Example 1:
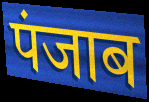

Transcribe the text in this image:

पंजाब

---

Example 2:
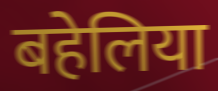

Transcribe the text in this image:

बहेलिया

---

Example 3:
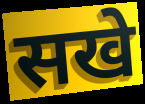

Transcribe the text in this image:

सखे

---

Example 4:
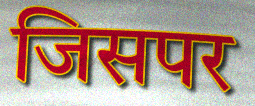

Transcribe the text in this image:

जिसपर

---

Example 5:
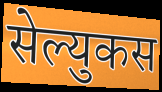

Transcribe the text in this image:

सेल्युकस